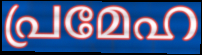
പ്രമേഹ